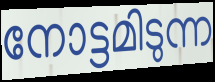
നോട്ടമിടുന്ന